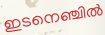
ഇടനെഞ്ചിൽ